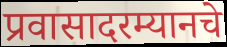
प्रवासादरम्यानचे